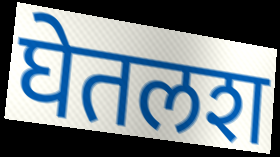
घेतलश